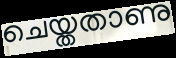
ചെയ്തതാണു